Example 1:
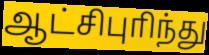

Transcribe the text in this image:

ஆட்சிபுரிந்து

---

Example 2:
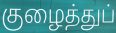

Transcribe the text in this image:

குழைத்துப்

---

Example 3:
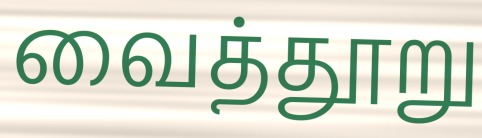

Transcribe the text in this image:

வைத்தூறு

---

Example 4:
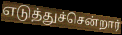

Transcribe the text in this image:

எடுத்துச்சென்றார்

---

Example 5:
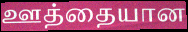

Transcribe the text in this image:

ஊத்தையான